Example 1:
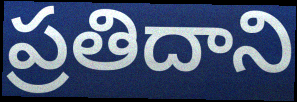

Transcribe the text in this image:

ప్రతిదాని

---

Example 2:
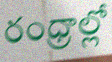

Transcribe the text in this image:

రంధ్రాల్లో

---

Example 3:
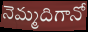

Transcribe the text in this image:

నెమ్మదిగానో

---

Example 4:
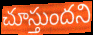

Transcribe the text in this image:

చూస్తుందని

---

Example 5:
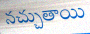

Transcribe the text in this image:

నచ్చుతాయి